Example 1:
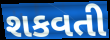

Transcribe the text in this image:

શકવતી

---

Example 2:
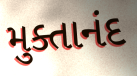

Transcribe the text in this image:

મુક્તાનંદ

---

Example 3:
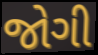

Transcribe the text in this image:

જોગી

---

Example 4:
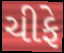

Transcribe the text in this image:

ચીફે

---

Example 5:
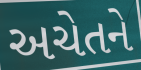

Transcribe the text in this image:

અચેતને